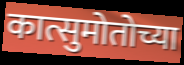
कात्सुमोतोच्या